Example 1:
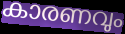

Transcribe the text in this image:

കാരണവും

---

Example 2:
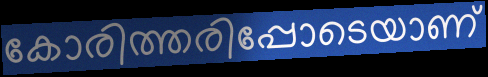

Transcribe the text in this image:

കോരിത്തരിപ്പോടെയാണ്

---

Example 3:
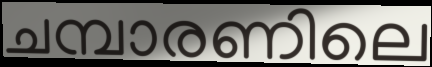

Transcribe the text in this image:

ചമ്പാരണിലെ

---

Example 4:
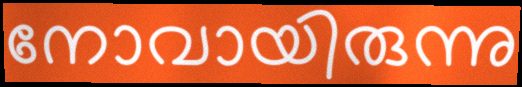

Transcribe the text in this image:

നോവായിരുന്നു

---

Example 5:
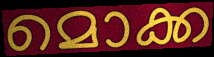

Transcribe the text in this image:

മൊക്ക